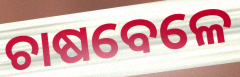
ଚାଷବେଳେ